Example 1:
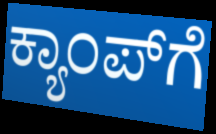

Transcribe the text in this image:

ಕ್ಯಾಂಪ್‍ಗೆ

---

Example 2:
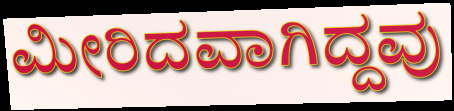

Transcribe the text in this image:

ಮೀರಿದವಾಗಿದ್ದವು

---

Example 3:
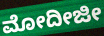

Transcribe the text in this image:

ಮೋದೀಜೀ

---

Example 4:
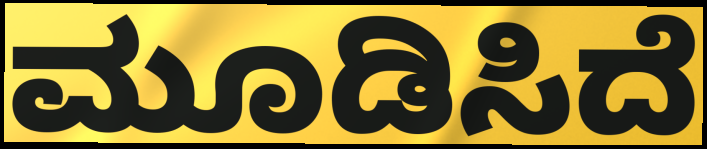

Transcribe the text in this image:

ಮೂಡಿಸಿದೆ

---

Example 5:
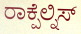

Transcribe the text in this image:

ರಾಕ್ಪೆಲ್ನಿಸ್